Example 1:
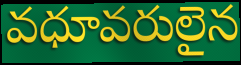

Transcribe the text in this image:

వధూవరులైన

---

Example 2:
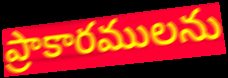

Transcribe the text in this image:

ప్రాకారములను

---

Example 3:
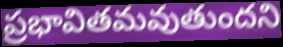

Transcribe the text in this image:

ప్రభావితమవుతుందని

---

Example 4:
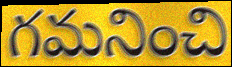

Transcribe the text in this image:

గమనించి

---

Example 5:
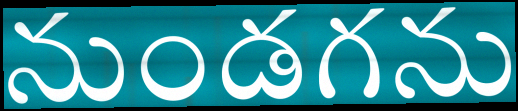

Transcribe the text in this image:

నుండగను